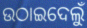
ଉଠାଇଦେଲୁଁ